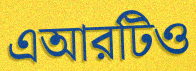
এআরটিও